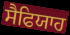
ਸੈਫਿਯਾਹ